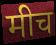
मीच